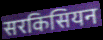
सरकिसियन